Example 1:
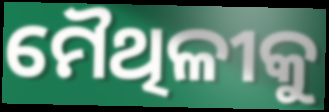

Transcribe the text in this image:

ମୈଥିଳୀକୁ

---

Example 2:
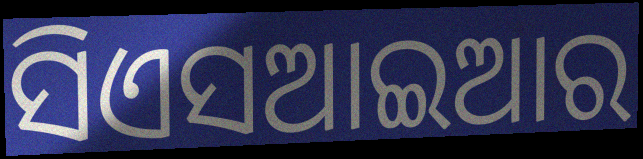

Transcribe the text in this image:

ସିଏସଆଇଆର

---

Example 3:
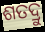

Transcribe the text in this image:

ଶତଦ୍ରୁ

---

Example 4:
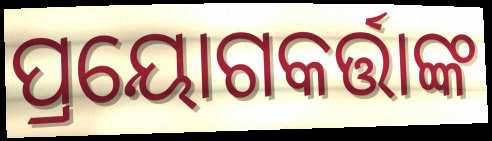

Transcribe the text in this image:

ପ୍ରୟୋଗକର୍ତ୍ତାଙ୍କ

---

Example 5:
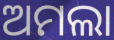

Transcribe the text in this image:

ଅମଲା